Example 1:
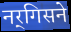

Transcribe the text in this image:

नर्गिसने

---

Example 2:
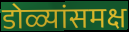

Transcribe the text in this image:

डोळ्यांसमक्ष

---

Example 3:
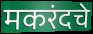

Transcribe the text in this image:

मकरंदचे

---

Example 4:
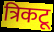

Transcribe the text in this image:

त्रिकटू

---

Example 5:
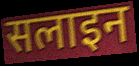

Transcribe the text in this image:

सलाइन